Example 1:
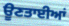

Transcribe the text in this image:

ਊਣਤਾਈਆਂ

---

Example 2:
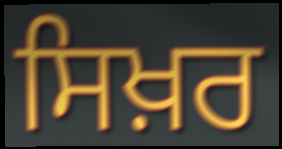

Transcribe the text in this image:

ਸਿਖ਼ਰ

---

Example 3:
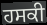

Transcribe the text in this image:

ਹਸਕੀ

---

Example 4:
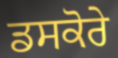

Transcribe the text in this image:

ਡਸਕੋਰੇ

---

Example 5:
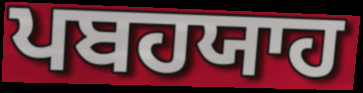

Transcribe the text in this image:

ਪਬਹਯਾਹ